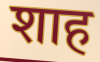
शाह